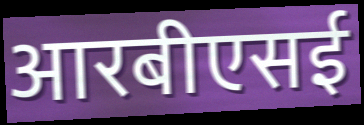
आरबीएसई